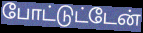
போட்டுட்டேன்